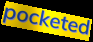
pocketed